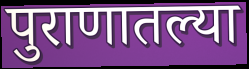
पुराणातल्या